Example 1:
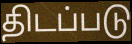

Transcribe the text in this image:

திடப்படு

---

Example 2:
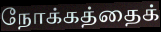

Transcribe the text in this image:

நோக்கத்தைக்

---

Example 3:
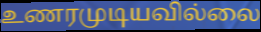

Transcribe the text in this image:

உணரமுடியவில்லை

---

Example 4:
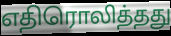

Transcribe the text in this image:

எதிரொலித்தது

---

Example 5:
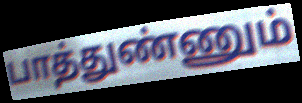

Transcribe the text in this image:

பாத்துண்ணும்